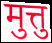
मुत्तु